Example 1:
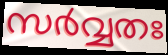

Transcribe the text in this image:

സർവ്വതഃ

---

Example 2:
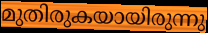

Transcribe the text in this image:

മുതിരുകയായിരുന്നു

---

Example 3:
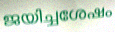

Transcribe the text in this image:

ജയിച്ചശേഷം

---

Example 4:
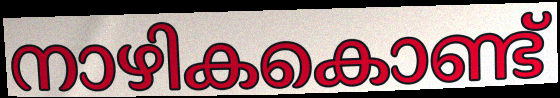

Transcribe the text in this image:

നാഴികകൊണ്ട്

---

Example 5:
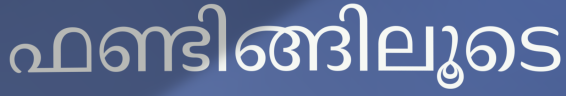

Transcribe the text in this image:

ഫണ്ടിങ്ങിലൂടെ